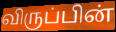
விருப்பின்